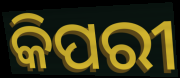
କିପରୀ